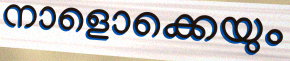
നാളൊക്കെയും